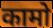
कामो